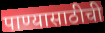
पाण्यासाठीची